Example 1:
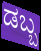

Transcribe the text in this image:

ಡಬ್ಬ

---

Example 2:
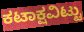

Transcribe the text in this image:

ಕಟಾಕ್ಷವಿಟ್ಟು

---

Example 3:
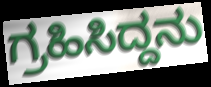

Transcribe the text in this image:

ಗ್ರಹಿಸಿದ್ದನು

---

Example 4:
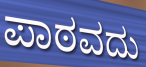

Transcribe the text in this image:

ಪಾಠವದು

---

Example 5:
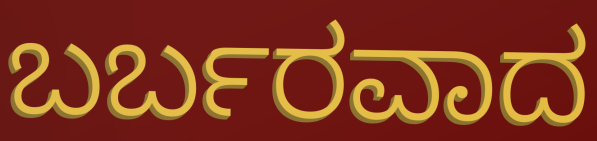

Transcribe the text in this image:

ಬರ್ಬರವಾದ